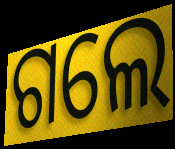
ଗଲେ